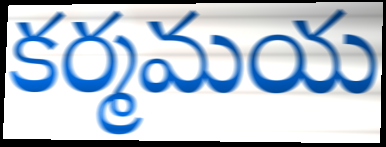
కర్మమయ